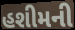
હશીમની